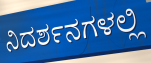
ನಿದರ್ಶನಗಳಲ್ಲಿ